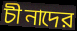
চীনাদের